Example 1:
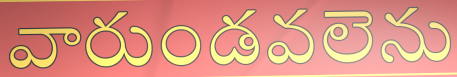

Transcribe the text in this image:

వారుండవలెను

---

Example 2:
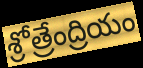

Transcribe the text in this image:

శ్రోత్రేంద్రియం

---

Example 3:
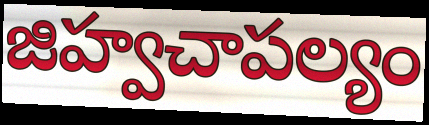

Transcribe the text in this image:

జిహ్వచాపల్యం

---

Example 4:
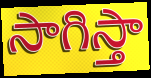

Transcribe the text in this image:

సాగిస్తా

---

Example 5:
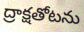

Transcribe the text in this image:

ద్రాక్షతోటను